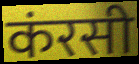
कंरसी